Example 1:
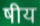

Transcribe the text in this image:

षीय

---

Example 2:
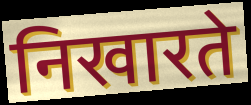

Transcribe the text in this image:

निखारते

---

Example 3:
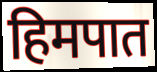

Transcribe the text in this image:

हिमपात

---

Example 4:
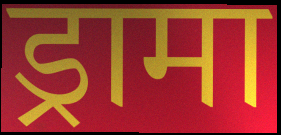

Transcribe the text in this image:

ड्रामा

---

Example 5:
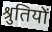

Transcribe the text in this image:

श्रुतियों